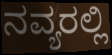
ನವ್ಯರಲ್ಲಿ